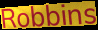
Robbins